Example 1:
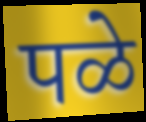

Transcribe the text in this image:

पळे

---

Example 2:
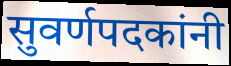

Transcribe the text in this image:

सुवर्णपदकांनी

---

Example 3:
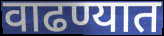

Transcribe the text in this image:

वाढण्यात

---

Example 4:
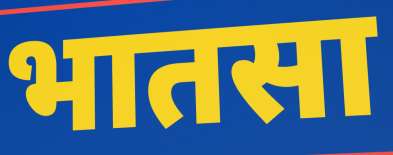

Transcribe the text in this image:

भातसा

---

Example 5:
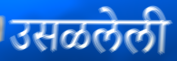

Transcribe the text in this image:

उसळलेली